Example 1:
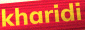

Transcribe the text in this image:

kharidi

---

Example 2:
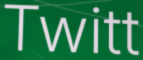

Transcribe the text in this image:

Twitt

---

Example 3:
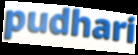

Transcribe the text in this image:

pudhari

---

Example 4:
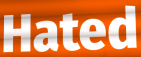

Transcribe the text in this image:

Hated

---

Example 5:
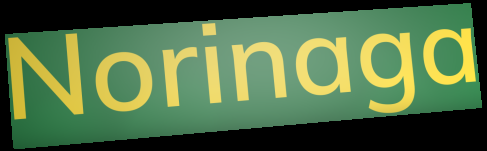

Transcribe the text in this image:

Norinaga